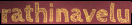
rathinavelu